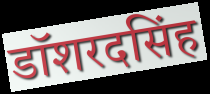
डॉशरदसिंह